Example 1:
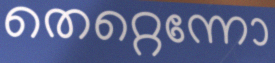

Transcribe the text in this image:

തെറ്റെന്നോ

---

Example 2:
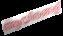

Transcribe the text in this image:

ആയിരങ്ങള്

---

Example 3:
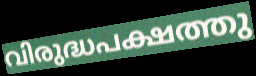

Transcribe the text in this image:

വിരുദ്ധപക്ഷത്തു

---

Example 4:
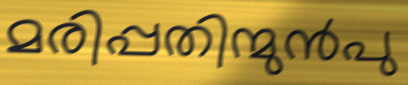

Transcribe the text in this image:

മരിപ്പതിന്മുൻപു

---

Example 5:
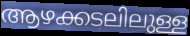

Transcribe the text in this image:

ആഴക്കടലിലുള്ള